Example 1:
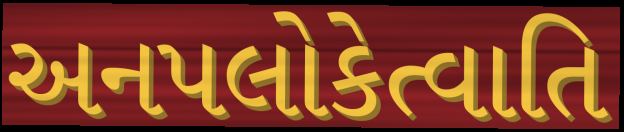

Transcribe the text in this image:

અનપલોકેત્વાતિ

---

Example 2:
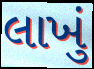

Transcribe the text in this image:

લાખું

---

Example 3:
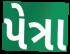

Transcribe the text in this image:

પેત્રા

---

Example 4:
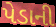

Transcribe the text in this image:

પેડાની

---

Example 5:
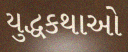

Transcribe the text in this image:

યુદ્ધકથાઓ